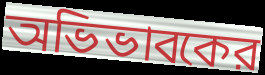
অভিভাবকের